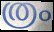
ത്രം